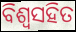
ବିଶ୍ଵସହିତ